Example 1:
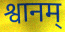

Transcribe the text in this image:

श्वानम्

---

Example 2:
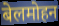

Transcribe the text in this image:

बेलमोहन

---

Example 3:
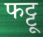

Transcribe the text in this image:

फट्टू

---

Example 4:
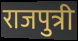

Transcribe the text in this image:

राजपुत्री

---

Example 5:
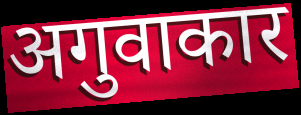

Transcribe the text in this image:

अगुवाकार